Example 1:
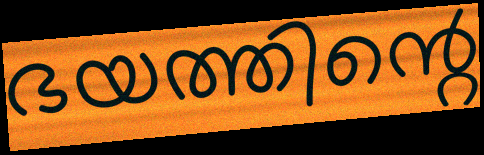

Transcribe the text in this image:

ഭയത്തിന്റെ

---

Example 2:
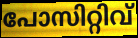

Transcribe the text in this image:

പോസിറ്റിവ്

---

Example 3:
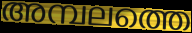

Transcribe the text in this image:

അമ്പലത്തെ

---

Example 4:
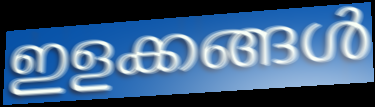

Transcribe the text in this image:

ഇളക്കങ്ങൾ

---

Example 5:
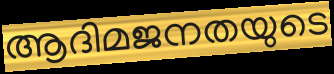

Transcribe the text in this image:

ആദിമജനതയുടെ